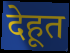
देहूत